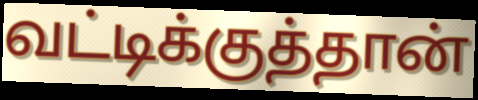
வட்டிக்குத்தான்